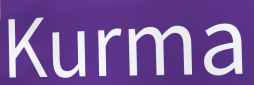
Kurma